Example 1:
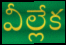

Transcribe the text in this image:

వీల్లేక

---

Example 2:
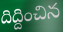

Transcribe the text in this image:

దిద్దించిన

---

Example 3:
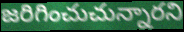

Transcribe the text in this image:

జరిగించుచున్నారని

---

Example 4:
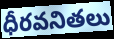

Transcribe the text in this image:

ధీరవనితలు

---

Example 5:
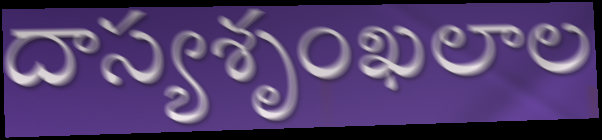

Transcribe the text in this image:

దాస్యశృంఖలాల